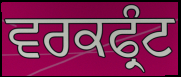
ਵਰਕਫ੍ਰੰਟ